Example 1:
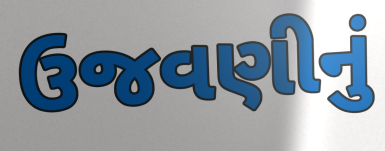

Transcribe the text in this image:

ઉજવણીનું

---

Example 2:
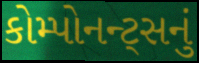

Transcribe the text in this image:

કોમ્પોનન્ટ્સનું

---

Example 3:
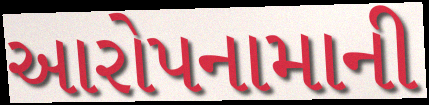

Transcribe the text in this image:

આરોપનામાની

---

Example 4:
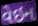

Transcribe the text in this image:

વેઇન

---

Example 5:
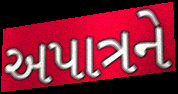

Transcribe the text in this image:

અપાત્રને